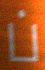
ப்